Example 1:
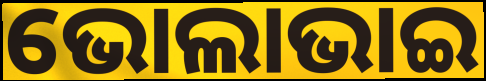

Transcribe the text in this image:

ଭୋଲାଭାଇ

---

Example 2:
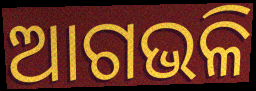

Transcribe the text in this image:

ଆଗଭଳି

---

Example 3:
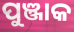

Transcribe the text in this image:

ପୁଞ୍ଜାକ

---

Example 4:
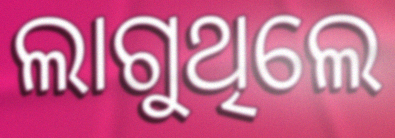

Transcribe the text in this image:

ଲାଗୁଥିଲେ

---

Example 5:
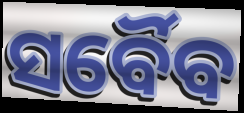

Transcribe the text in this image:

ସର୍ବୈବ